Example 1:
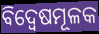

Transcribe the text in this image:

ବିଦ୍ୱେଷମୂଳକ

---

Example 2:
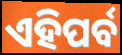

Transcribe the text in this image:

ଏହିପର୍ବ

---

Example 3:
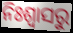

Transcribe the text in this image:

ନିଃଶ୍ବାସରୁ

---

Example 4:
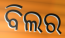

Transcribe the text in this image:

ବିଲର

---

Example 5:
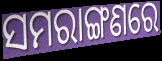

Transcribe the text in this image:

ସମରାଙ୍ଗଣରେ